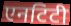
एनटिटी